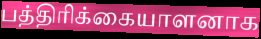
பத்திரிக்கையாளனாக